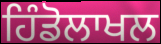
ਹਿੰਡੋਲਾਖਲ